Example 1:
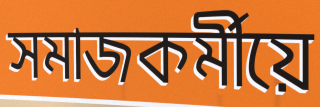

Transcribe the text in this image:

সমাজকৰ্মীয়ে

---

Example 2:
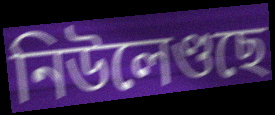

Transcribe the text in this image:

নিউলেণ্ডছে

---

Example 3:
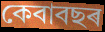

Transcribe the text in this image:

কেবাবছৰ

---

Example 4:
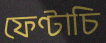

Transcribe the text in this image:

ফেণ্টাচি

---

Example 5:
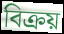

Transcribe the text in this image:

বিক্ৰয়